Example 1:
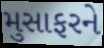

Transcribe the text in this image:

મુસાફરને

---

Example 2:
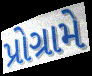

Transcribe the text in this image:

પ્રોગ્રામે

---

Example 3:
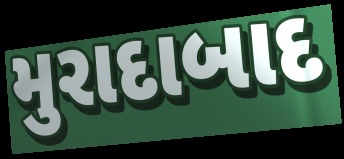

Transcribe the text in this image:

મુરાદાબાદ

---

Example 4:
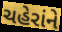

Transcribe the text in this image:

ચહેરાંને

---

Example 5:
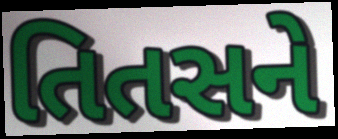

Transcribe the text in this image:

તિતસને